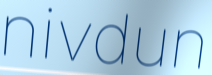
nivdun